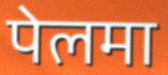
पेलमा